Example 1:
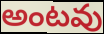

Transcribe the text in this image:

అంటవు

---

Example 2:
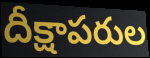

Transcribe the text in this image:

దీక్షాపరుల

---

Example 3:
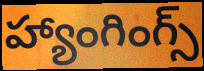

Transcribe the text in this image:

హ్యాంగింగ్స్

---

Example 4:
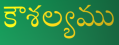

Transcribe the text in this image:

కౌశల్యము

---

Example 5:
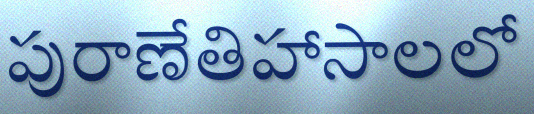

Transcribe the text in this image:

పురాణేతిహాసాలలో